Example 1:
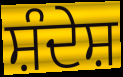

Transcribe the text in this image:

ਸ਼ੰਦੇਸ਼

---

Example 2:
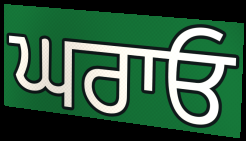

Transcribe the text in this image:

ਘਰਾਓ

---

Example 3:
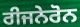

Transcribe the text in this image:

ਰੀਜਨੇਰੋਨ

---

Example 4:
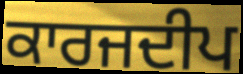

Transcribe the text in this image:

ਕਾਰਜਦੀਪ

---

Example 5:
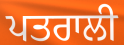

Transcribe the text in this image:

ਪਤਰਾਲੀ